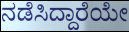
ನಡೆಸಿದ್ದಾರೆಯೇ